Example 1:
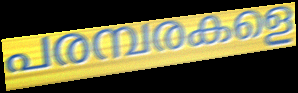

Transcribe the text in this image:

പരമ്പരകളെ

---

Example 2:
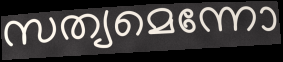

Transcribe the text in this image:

സത്യമെന്നോ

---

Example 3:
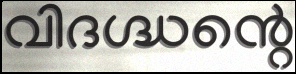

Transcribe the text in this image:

വിദഗ്ദ്ധന്റെ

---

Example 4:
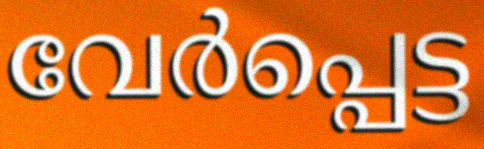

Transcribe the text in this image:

വേർപ്പെട്ട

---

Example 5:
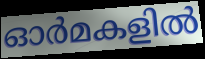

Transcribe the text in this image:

ഓർമകളിൽ